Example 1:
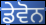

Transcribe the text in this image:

ਡੇਵੋਨ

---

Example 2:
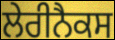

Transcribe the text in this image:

ਲੇਰੀਨੈਕਸ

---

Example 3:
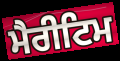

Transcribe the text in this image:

ਮੈਰੀਟਿਮ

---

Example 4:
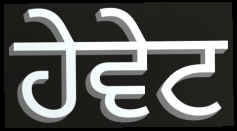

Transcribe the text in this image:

ਹੇਵੇਟ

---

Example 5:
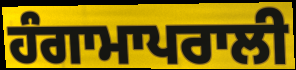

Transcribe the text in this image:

ਹੰਗਾਮਾਪਰਾਲੀ